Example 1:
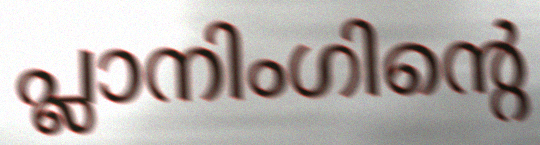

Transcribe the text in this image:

പ്ലാനിംഗിന്റെ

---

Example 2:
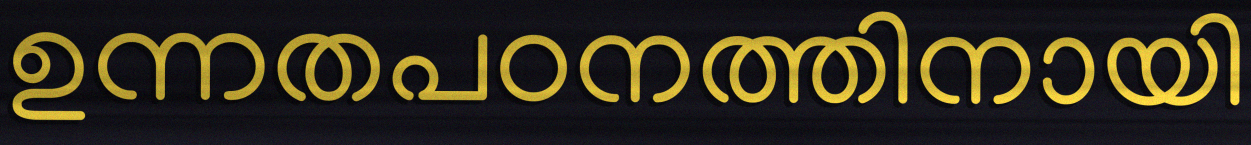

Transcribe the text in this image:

ഉന്നതപഠനത്തിനായി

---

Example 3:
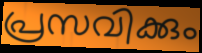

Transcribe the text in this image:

പ്രസവിക്കും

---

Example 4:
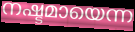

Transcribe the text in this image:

നഷ്ടമായെന്ന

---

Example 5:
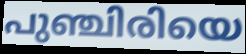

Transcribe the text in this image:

പുഞ്ചിരിയെ